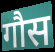
गौस